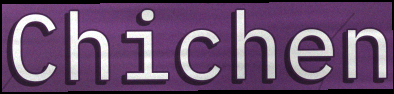
Chichen